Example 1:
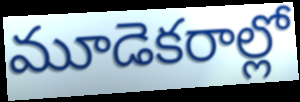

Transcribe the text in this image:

మూడెకరాల్లో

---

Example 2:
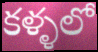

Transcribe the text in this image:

కళ్ళలో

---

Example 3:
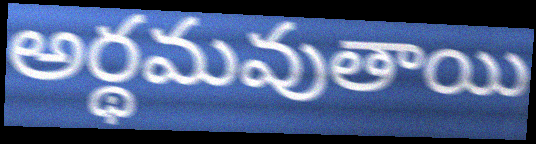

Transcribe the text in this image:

అర్థమవుతాయి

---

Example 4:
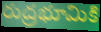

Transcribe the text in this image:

రుద్రభూమికి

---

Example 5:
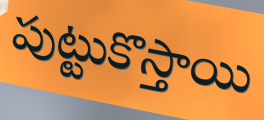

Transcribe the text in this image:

పుట్టుకొస్తాయి